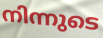
നിന്നുടെ